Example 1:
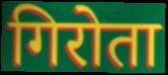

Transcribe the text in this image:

गिरोता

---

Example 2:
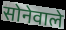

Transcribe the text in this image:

सोनेवाले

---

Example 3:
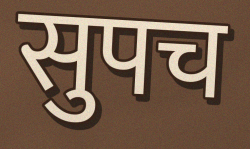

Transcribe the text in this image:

सुपच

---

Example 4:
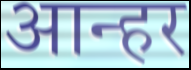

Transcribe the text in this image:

आन्हर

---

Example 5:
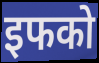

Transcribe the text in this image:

इफको